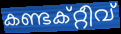
കണ്ടക്റ്റീവ്